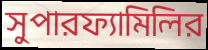
সুপারফ্যামিলির